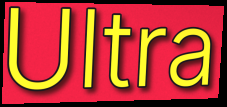
Ultra